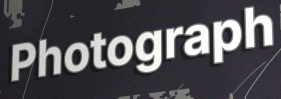
Photograph